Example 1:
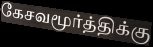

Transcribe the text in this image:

கேசவமூர்த்திக்கு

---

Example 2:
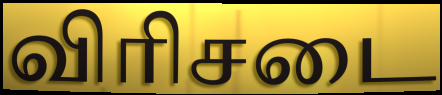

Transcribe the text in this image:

விரிசடை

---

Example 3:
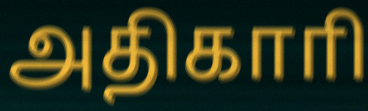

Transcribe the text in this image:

அதிகாரி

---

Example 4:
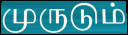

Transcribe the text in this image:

முருடும்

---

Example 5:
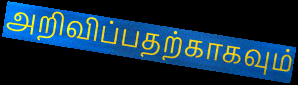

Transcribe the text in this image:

அறிவிப்பதற்காகவும்